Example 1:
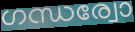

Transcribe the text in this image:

ഗന്ധര്വോ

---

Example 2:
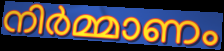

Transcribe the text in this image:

നിർമ്മാണം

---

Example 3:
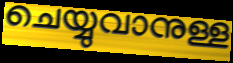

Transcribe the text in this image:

ചെയ്യുവാനുള്ള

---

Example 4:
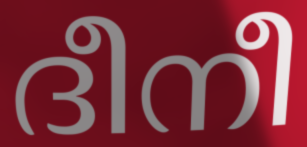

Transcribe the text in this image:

ദീനീ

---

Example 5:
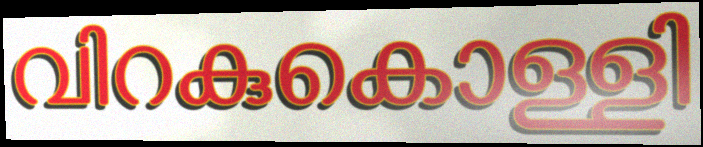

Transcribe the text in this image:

വിറകുകൊള്ളി